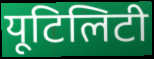
यूटिलिटी